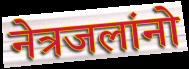
नेत्रजलांनो